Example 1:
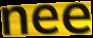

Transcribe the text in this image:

nee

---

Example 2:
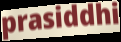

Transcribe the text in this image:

prasiddhi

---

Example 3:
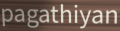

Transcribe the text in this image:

pagathiyan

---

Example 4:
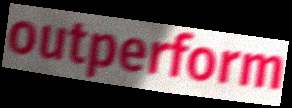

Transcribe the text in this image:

outperform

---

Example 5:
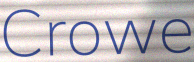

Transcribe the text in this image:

Crowe